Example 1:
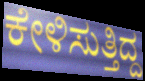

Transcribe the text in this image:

ಕೇಳಿಸುತ್ತಿದ್ದ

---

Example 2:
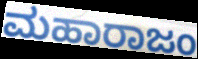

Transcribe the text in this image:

ಮಹಾರಾಜಂ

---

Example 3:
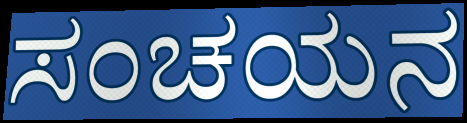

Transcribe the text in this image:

ಸಂಚಯನ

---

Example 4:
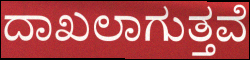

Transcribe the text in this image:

ದಾಖಲಾಗುತ್ತವೆ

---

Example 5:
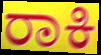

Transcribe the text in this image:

ರಾಕಿ